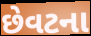
છેવટના